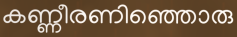
കണ്ണീരണിഞ്ഞൊരു